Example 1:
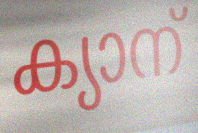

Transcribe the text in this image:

ക്യാന്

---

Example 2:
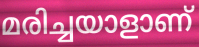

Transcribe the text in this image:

മരിച്ചയാളാണ്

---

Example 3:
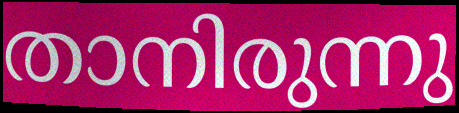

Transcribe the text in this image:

താനിരുന്നു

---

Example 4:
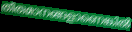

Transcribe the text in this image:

തീരുമാനങ്ങളാണെങ്കിൽ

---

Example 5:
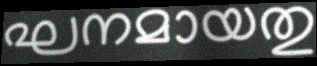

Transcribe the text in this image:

ഘനമായതു